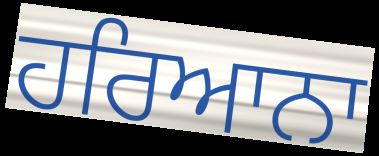
ਹਰਿਆਨਾ